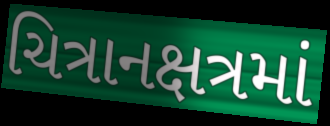
ચિત્રાનક્ષત્રમાં